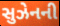
સુઝેનની